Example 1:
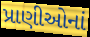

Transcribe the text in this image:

પ્રાણીઓનાં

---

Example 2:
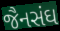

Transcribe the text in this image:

જૈનસંઘ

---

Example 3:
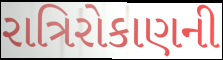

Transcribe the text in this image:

રાત્રિરોકાણની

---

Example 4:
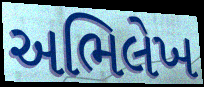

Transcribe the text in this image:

અભિલેખ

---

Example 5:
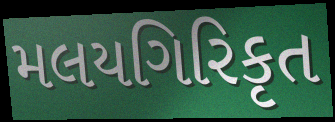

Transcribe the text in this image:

મલયગિરિકૃત